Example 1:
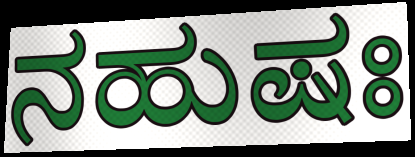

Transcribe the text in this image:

ನಹುಷಃ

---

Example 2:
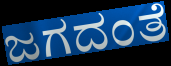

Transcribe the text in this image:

ಜಗದಂತೆ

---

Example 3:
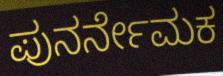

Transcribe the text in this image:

ಪುನರ್ನೇಮಕ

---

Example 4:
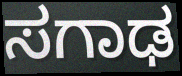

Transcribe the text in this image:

ಸಗಾಢ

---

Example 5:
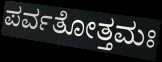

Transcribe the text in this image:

ಪರ್ವತೋತ್ತಮಃ